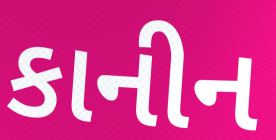
કાનીન